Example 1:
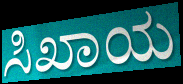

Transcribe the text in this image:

ಸಿಖಾಯ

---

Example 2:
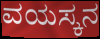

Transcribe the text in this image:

ವಯಸ್ಕನ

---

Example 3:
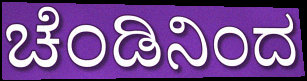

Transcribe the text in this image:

ಚೆಂಡಿನಿಂದ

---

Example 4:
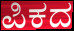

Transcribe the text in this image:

ಪಿಕದ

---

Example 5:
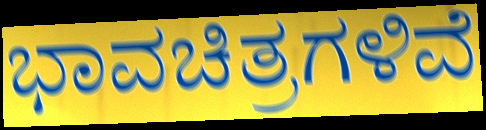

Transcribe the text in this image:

ಭಾವಚಿತ್ರಗಳಿವೆ